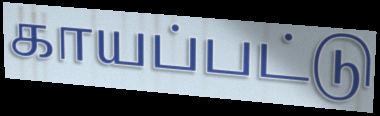
காயப்பட்டு